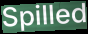
Spilled